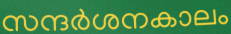
സന്ദർശനകാലം